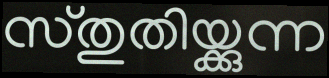
സ്തുതിയ്ക്കുന്ന